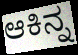
ಆಕಿನ್ನ